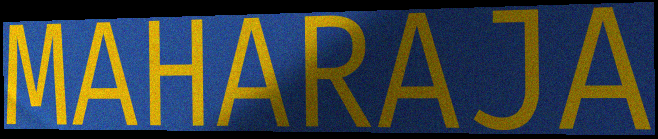
MAHARAJA